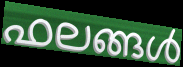
ഫലങ്ങൾ